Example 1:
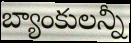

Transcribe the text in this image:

బ్యాంకులన్నీ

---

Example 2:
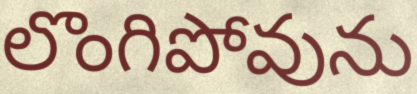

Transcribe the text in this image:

లొంగిపోవును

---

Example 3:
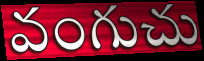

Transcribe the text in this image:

వంగుచు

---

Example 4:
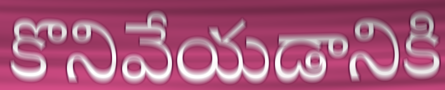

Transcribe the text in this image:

కొనివేయడానికి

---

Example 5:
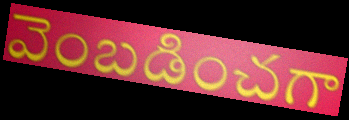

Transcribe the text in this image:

వెంబడించగా